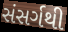
સંસર્ગથી